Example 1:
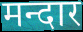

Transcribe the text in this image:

मन्दार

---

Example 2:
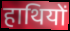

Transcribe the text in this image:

हाथियों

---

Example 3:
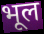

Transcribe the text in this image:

भूल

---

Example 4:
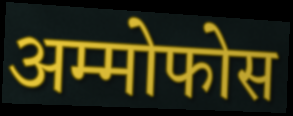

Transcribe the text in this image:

अम्मोफोस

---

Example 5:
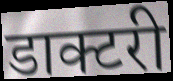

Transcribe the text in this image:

डाक्टरी